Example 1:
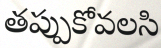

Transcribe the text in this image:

తప్పుకోవలసి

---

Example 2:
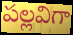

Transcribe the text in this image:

పల్లవిగా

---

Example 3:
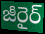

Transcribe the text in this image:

జీరైర్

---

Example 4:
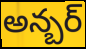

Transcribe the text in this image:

అన్బర్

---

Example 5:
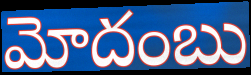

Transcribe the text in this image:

మోదంబు